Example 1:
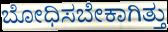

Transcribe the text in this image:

ಬೋಧಿಸಬೇಕಾಗಿತ್ತು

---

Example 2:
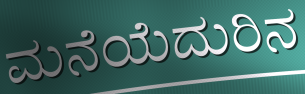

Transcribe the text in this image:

ಮನೆಯೆದುರಿನ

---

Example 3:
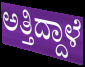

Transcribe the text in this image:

ಅತ್ತಿದ್ದಾಳೆ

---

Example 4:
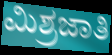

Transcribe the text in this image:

ಮಿಶ್ರಜಾತಿ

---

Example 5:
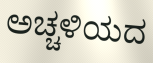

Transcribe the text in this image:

ಅಚ್ಚಳಿಯದ